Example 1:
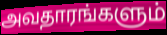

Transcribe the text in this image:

அவதாரங்களும்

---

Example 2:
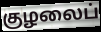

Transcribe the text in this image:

குழலைப்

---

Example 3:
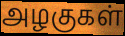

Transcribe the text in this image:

அழகுகள்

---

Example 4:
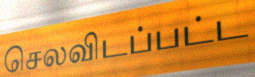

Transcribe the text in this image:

செலவிடப்பட்ட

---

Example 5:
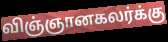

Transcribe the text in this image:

விஞ்ஞானகலர்க்கு